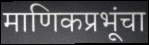
माणिकप्रभूंचा